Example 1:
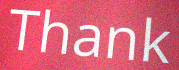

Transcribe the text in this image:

Thank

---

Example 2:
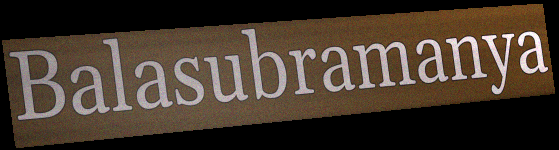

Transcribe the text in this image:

Balasubramanya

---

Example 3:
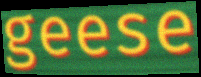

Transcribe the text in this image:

geese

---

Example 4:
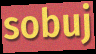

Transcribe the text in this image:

sobuj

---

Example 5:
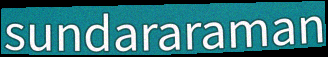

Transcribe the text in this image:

sundararaman